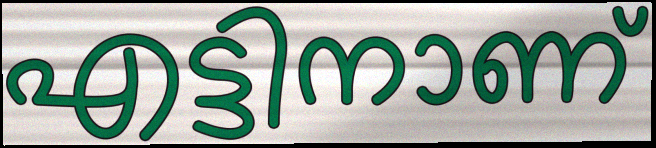
എട്ടിനാണ്